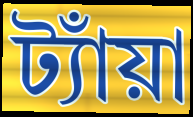
ট্যাঁয়া